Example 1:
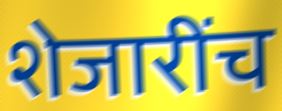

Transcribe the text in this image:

शेजारींच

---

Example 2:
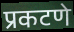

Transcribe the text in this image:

प्रकटणे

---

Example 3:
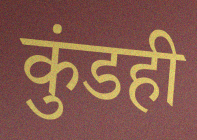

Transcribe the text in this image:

कुंडही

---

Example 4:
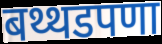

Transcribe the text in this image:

बथ्थडपणा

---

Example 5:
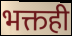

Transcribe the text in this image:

भक्तही